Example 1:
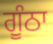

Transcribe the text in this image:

ਗੂੰਠਾ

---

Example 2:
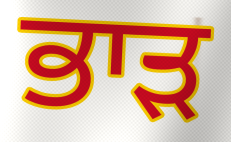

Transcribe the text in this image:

ਭਾੜ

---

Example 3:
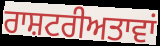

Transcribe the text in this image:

ਰਾਸ਼ਟਰੀਅਤਾਵਾਂ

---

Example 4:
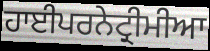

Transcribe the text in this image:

ਹਾਈਪਰਨੇਟ੍ਰੀਮੀਆ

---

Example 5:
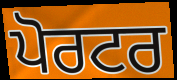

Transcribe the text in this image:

ਪੋਰਟਰ